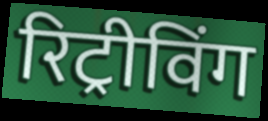
रिट्रीविंग